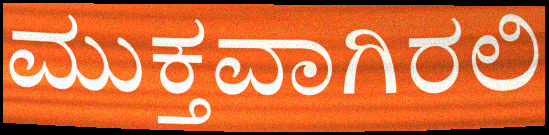
ಮುಕ್ತವಾಗಿರಲಿ